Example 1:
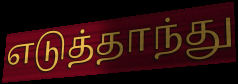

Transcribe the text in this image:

எடுத்தாந்து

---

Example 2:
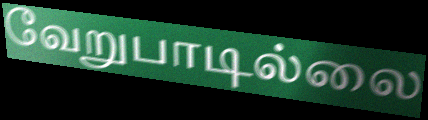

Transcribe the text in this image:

வேறுபாடில்லை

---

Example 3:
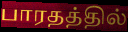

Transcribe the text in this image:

பாரதத்தில்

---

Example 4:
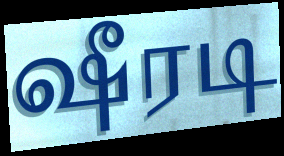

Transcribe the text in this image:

ஷீரடி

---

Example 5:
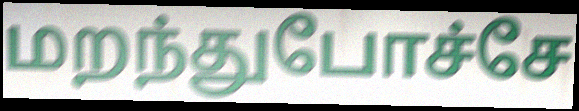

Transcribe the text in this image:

மறந்துபோச்சே